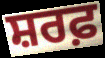
ਸ਼ਰਫ਼